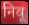
निवू